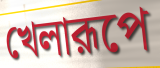
খেলারূপে